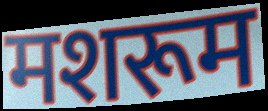
मशरूम